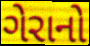
ગેરાનો